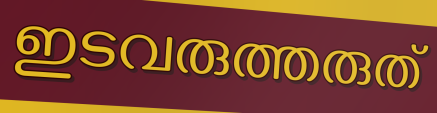
ഇടവരുത്തരുത്